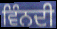
ਵਿੰਨਦੀ